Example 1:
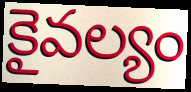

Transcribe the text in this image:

కైవల్యం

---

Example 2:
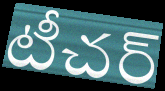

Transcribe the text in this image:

టీచర్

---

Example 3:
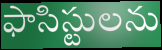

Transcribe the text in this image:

ఫాసిస్టులను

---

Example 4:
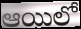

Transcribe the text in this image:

ఆయిలో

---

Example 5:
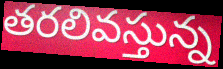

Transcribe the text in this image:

తరలివస్తున్న